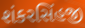
શંકરસિંહજી